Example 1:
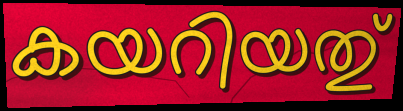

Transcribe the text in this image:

കയറിയതു്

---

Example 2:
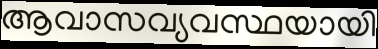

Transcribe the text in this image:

ആവാസവ്യവസ്ഥയായി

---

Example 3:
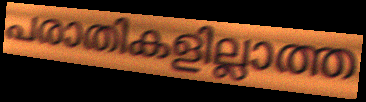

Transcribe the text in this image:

പരാതികളില്ലാത്ത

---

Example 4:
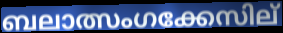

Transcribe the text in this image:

ബലാത്സംഗക്കേസില്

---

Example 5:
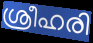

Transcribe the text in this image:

ശ്രീഹരി